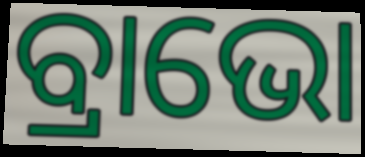
ବ୍ରାଭୋ